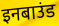
इनबाउंड